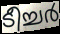
ടീച്ചർ